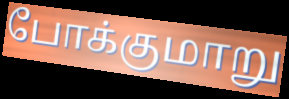
போக்குமாறு